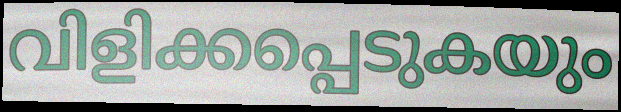
വിളിക്കപ്പെടുകയും